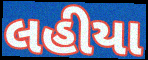
લહીયા